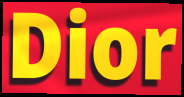
Dior